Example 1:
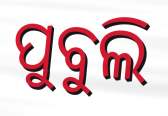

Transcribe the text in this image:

ପୁବୁଲି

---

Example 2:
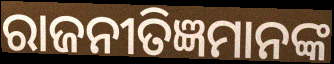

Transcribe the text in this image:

ରାଜନୀତିଜ୍ଞମାନଙ୍କ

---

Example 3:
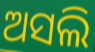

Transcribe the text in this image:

ଅସଲି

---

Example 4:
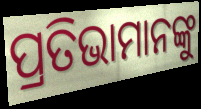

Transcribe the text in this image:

ପ୍ରତିଭାମାନଙ୍କୁ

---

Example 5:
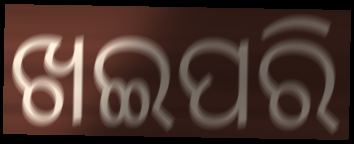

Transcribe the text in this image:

ଖଇପରି